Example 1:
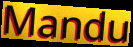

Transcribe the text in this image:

Mandu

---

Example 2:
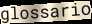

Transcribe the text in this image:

glossario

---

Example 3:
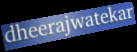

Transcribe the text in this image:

dheerajwatekar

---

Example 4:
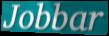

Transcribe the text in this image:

Jobbar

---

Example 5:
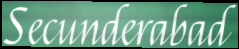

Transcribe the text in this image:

Secunderabad